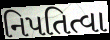
નિપતિત્વા